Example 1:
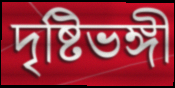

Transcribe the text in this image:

দৃষ্টিভঙ্গী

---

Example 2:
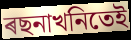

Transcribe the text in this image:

ৰছনাখনিতেই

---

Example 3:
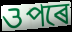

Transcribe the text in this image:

ওপৰে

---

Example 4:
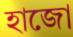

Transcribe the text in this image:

হাজো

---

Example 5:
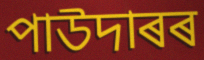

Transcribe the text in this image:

পাউদাৰৰ